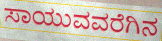
ಸಾಯುವವರೆಗಿನ